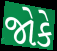
જોકે